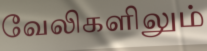
வேலிகளிலும்